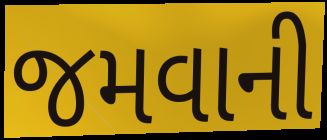
જમવાની